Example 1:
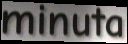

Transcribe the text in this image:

minuta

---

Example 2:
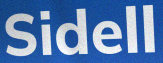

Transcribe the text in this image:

Sidell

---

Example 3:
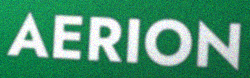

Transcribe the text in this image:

AERION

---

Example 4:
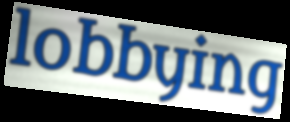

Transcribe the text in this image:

lobbying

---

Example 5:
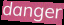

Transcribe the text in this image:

danger